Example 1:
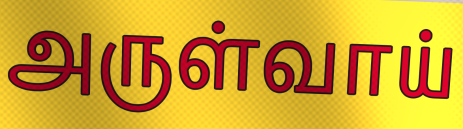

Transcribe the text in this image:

அருள்வாய்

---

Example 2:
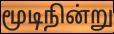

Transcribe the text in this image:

மூடிநின்று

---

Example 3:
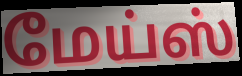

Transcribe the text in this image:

மேய்ஸ்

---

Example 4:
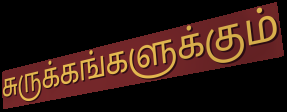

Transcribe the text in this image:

சுருக்கங்களுக்கும்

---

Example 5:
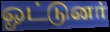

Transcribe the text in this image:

ஓட்டுனர்